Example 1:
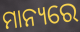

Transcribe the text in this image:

ମାନ୍ୟରେ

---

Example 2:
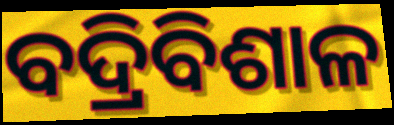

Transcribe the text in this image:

ବଦ୍ରିବିଶାଳ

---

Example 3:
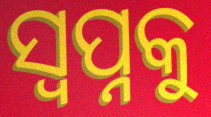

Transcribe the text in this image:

ସ୍ୱପ୍ନକୁ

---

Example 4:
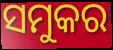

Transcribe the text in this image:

ସମୁକର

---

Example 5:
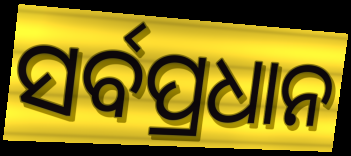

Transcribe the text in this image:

ସର୍ବପ୍ରଧାନ